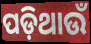
ପଡ଼ିଥାଉଁ